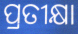
ପ୍ରତୀକ୍ଷା